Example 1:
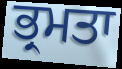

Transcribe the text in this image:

ਭ੍ਰਮਤਾ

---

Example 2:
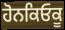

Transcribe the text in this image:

ਹੋਨਕਿਓਕੂ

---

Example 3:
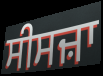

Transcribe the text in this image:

ਸੀਸਜ਼ਾ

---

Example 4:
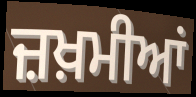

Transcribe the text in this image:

ਜ਼ਖ਼ਮੀਆਂ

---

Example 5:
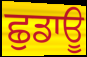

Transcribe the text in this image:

ਛੁਡਾਊ